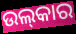
ଉଲ୍‌କାର